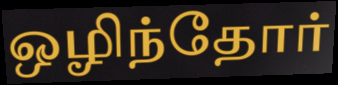
ஒழிந்தோர்